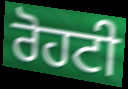
ਰੋਹਟੀ